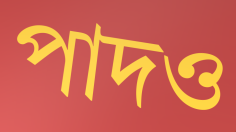
পাদও